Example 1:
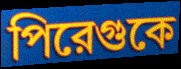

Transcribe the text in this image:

পিরেগুকে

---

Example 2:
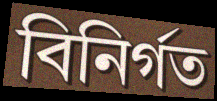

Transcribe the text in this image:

বিনির্গত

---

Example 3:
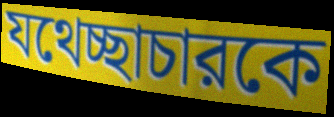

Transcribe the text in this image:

যথেচ্ছাচারকে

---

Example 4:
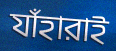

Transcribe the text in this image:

যাঁহারাই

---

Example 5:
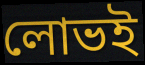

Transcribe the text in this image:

লোভই